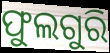
ଫୁଲଗୁରି